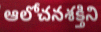
ఆలోచనశక్తిని